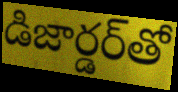
డిజార్డర్‌తో